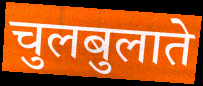
चुलबुलाते